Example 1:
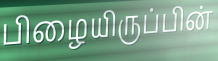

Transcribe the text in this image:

பிழையிருப்பின்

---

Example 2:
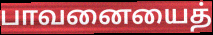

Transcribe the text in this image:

பாவனையைத்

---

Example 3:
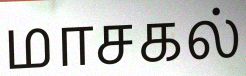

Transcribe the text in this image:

மாசகல்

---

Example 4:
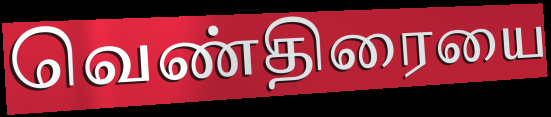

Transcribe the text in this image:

வெண்திரையை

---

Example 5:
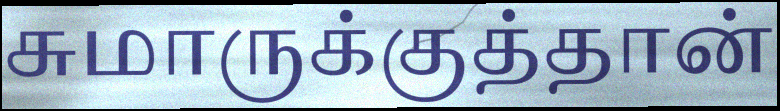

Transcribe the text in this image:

சுமாருக்குத்தான்